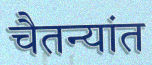
चैतन्यांत